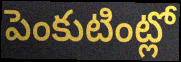
పెంకుటింట్లో